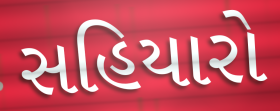
સહિયારો